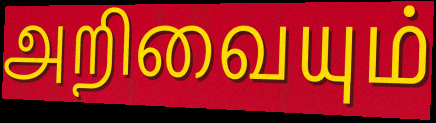
அறிவையும்